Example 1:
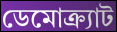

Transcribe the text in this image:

ডেমোক্র্যাট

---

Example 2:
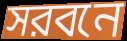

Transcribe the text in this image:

সরবনে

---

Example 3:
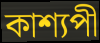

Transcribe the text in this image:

কাশ্যপী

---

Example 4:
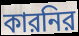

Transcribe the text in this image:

কারনির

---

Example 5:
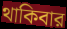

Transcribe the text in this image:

থাকিবার